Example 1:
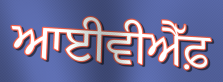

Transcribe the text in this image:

ਆਈਵੀਐੱਫ਼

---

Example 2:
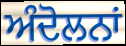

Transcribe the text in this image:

ਅੰਦੋਲਨਾਂ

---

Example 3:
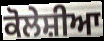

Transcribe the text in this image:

ਕੋਲੇਸ਼ੀਆ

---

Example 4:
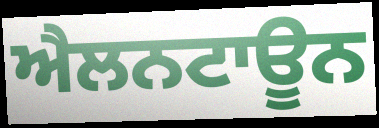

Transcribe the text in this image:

ਐਲਨਟਾਊਨ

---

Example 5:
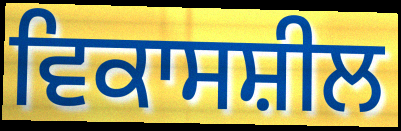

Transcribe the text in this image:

ਵਿਕਾਸਸ਼ੀਲ